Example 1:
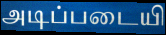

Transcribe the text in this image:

அடிப்படையி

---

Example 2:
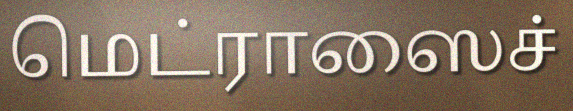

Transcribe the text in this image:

மெட்ராஸைச்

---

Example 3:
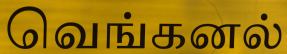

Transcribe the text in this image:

வெங்கனல்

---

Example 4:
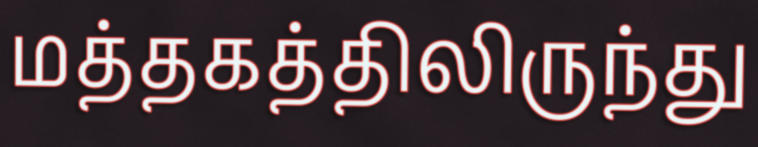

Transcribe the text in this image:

மத்தகத்திலிருந்து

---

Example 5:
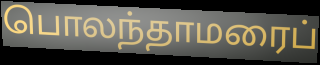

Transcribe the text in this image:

பொலந்தாமரைப்